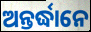
ଅନ୍ତର୍ଦ୍ଧାନେ